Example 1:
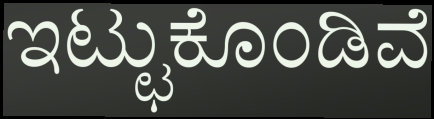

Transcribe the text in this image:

ಇಟ್ಟುಕೊಂಡಿವೆ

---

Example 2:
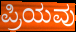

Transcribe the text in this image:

ಪ್ರಿಯವು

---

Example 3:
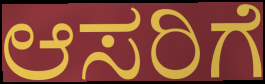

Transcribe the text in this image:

ಆಸರಿಗೆ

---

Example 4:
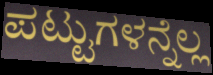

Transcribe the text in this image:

ಪಟ್ಟುಗಳನ್ನೆಲ್ಲ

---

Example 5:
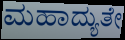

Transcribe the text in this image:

ಮಹಾದ್ಯುತೇ